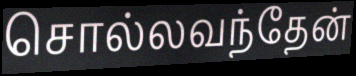
சொல்லவந்தேன்